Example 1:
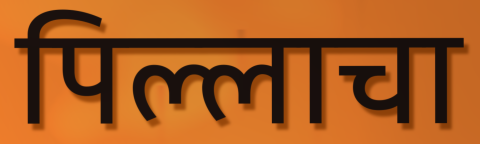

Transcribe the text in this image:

पिल्लाचा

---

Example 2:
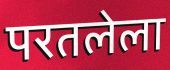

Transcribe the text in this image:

परतलेला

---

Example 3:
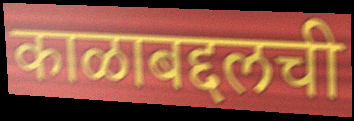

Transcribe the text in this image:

काळाबद्दलची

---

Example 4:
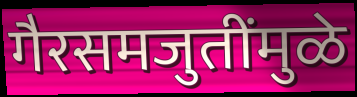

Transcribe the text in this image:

गैरसमजुतींमुळे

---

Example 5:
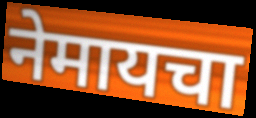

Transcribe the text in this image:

नेमायचा